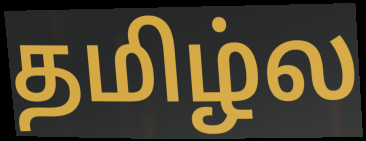
தமிழ்ல